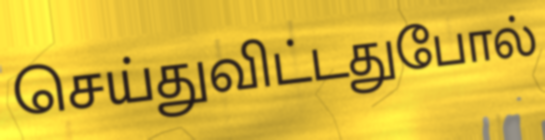
செய்துவிட்டதுபோல்